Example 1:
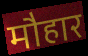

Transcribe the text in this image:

मौहार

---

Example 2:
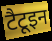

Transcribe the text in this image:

टैटूइन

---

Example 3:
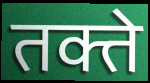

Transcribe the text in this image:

तक्ते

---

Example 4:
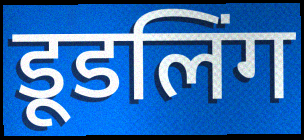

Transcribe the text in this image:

डूडलिंग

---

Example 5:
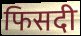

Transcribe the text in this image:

फिसदी